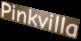
Pinkvilla